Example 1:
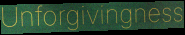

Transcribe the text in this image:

Unforgivingness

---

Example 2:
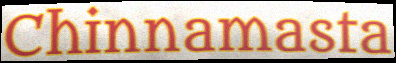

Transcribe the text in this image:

Chinnamasta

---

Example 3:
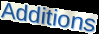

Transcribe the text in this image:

Additions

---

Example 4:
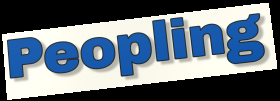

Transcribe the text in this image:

Peopling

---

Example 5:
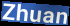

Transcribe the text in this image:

Zhuan